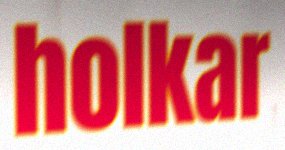
holkar